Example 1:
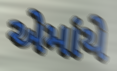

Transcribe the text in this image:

એમાંયે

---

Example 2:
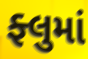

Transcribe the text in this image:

ફ્લુમાં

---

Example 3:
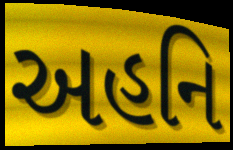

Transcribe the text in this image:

અહનિ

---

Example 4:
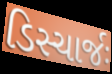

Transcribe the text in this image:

ડિસ્ચાર્જઃ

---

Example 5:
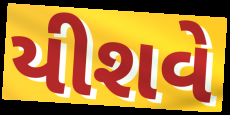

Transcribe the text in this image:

યીશવે